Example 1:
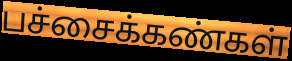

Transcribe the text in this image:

பச்சைக்கண்கள்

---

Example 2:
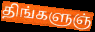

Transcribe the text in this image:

திங்களுஞ்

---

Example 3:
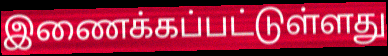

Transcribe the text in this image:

இணைக்கப்பட்டுள்ளது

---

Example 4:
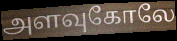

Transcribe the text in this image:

அளவுகோலே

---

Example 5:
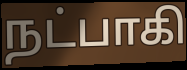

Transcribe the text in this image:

நட்பாகி